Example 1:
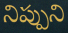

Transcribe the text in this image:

నిప్పుని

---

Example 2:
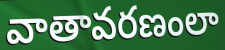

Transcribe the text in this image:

వాతావరణంలా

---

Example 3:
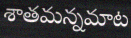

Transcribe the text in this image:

శాతమన్నమాట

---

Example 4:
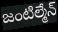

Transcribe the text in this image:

జంటిల్మేన్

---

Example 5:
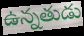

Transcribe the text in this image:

ఉన్నతుడు